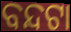
ବନ୍ଦଟା